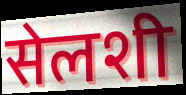
सेलशी